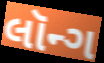
લૉન્ગ